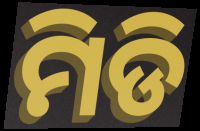
ମିଡି